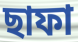
ছাফা